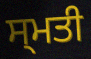
ਸ੍ਮਤੀ